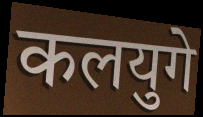
कलयुगे